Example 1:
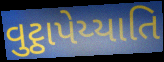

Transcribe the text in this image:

વુટ્ઠાપેય્યાતિ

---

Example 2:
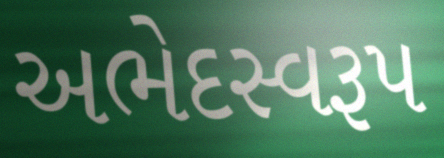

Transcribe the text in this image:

અભેદસ્વરૂપ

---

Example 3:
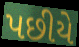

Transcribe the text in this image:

પછીયે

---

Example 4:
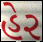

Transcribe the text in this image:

હેર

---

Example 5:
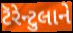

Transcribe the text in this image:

ટૅરેન્ટુલાને